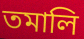
তমালি